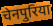
चेनपुरिया